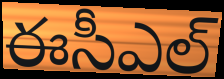
ఈసీఎల్